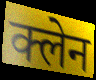
क्लेन